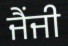
ਜੈਂਜੀ